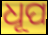
ଧୂପ